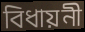
বিধায়নী